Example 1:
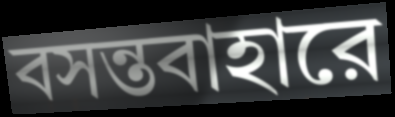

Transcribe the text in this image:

বসন্তবাহারে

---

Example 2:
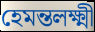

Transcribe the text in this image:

হেমন্তলক্ষ্মী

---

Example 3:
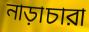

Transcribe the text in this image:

নাড়াচারা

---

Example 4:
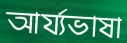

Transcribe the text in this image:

আর্য্যভাষা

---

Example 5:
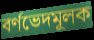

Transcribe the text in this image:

বর্ণভেদমূলক